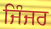
ਜਿੰਜਰ